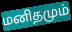
மனிதமும்